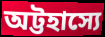
অট্টহাস্যে